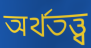
অৰ্থতত্ত্ব